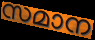
സമാന